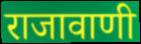
राजावाणी